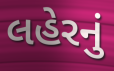
લહેરનું